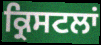
ਕ੍ਰਿਸਟਲਾਂ